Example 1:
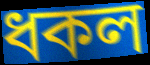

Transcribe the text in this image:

ধকল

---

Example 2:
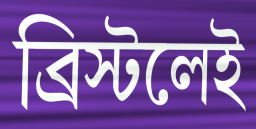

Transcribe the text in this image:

ব্রিস্টলেই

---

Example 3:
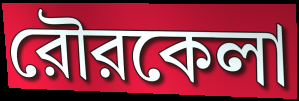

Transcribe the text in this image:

রৌরকেলা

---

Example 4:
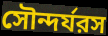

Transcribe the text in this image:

সৌন্দর্যরস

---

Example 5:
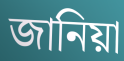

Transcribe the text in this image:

জানিয়া